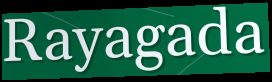
Rayagada